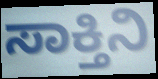
ಸಾಕ್ತಿನಿ